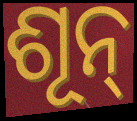
ଶୂନ୍